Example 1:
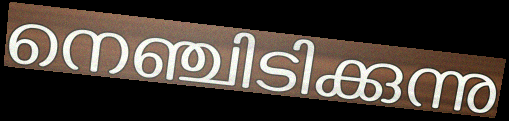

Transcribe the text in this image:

നെഞ്ചിടിക്കുന്നു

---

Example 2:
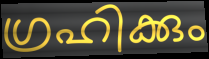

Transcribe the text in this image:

ഗ്രഹിക്കും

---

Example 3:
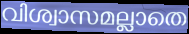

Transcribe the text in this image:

വിശ്വാസമല്ലാതെ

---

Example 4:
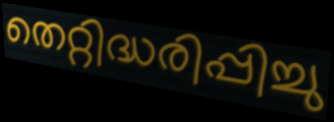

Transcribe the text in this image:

തെറ്റിദ്ധരിപ്പിച്ചു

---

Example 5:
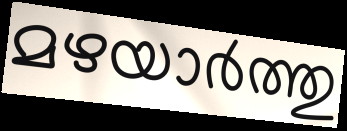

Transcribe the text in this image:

മഴയാർത്തു